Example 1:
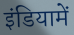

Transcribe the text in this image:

इंडियामें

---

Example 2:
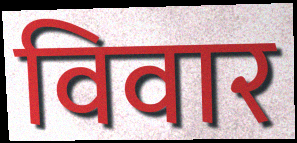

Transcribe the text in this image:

विवार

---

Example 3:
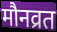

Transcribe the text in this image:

मौनव्रत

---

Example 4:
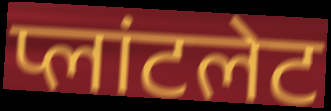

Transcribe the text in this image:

प्लांटलेट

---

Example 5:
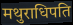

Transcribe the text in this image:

मथुराधिपति